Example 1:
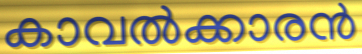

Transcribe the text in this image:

കാവൽക്കാരൻ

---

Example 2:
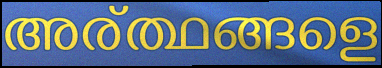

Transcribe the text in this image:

അര്ത്ഥങ്ങളെ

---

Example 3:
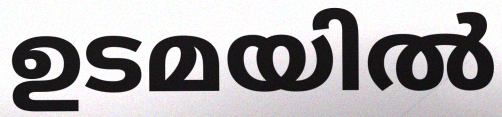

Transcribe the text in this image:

ഉടമയിൽ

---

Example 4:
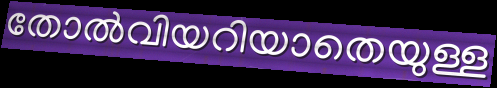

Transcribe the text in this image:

തോൽവിയറിയാതെയുള്ള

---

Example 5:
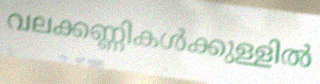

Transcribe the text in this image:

വലക്കണ്ണികൾക്കുള്ളിൽ